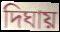
দিঘায়